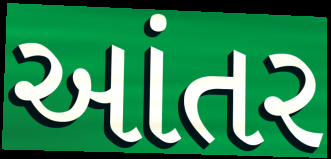
આંતર